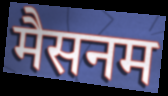
मैसनम